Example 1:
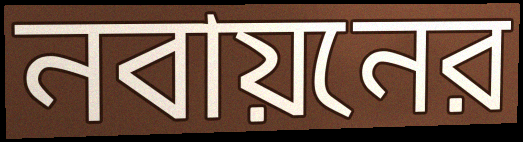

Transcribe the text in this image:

নবায়নের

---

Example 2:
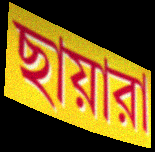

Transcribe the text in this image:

ছায়ারা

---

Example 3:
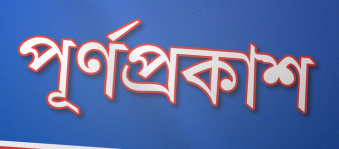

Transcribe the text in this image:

পূর্ণপ্রকাশ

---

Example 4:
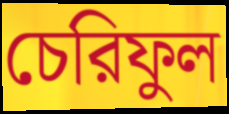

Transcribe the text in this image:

চেরিফুল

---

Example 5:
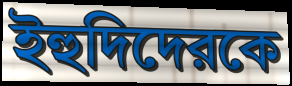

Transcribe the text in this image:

ইহুদিদেরকে